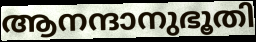
ആനന്ദാനുഭൂതി